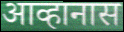
आव्हानास